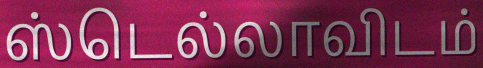
ஸ்டெல்லாவிடம்